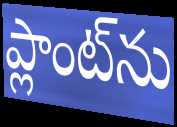
ప్లాంట్‌ను